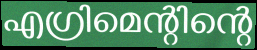
എഗ്രിമെന്റിന്റെ